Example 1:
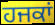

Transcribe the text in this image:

ਹਜਕਾਂ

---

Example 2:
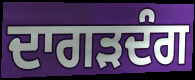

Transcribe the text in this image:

ਦਾਗੜਦੰਗ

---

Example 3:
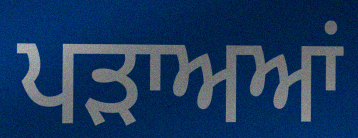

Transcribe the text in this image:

ਪੜਾਅਆਂ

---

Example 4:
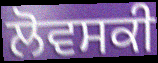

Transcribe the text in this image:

ਲੋਵਸਕੀ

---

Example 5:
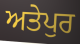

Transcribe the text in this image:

ਅਤੇਪੁਰ